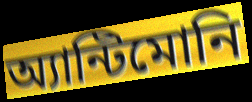
অ্যান্টিমোনি